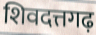
शिवदत्तगढ़